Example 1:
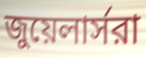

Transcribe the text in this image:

জুয়েলার্সরা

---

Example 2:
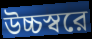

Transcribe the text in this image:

উচ্চস্বরে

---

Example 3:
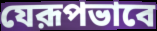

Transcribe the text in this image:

যেরূপভাবে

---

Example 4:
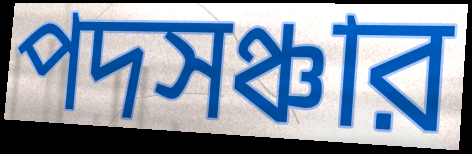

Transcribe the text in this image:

পদসঞ্চার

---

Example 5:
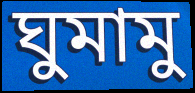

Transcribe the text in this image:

ঘুমামু